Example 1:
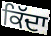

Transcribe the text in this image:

ਕਿੱਦਾ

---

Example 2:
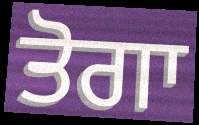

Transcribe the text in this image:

ਤੋਗਾ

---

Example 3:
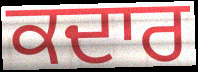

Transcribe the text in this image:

ਕਦਾਰ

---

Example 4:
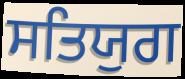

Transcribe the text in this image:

ਸਤਿਯੁਗ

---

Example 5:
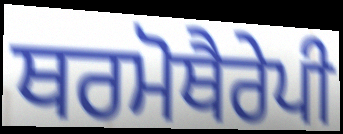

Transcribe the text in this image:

ਥਰਮੋਥੈਰੇਪੀ